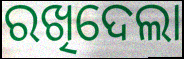
ରଖିଦେଲା